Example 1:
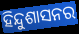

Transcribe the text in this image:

ହିନ୍ଦୁଶାସନର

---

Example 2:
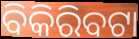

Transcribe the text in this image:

ବିକିରିବଟା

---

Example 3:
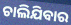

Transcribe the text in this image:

ଚାଲିଯିବାର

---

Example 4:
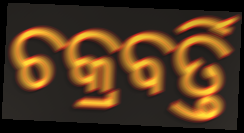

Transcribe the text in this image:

ଚକ୍ରବର୍ତ୍ତି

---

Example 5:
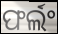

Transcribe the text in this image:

ଫର୍ଲଂ